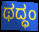
ಥದ್ಧಂ